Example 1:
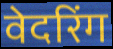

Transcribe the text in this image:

वेदरिंग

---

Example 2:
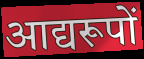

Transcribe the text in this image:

आद्यरूपों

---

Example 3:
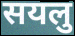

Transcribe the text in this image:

सयलु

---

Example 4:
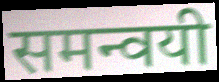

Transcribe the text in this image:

समन्वयी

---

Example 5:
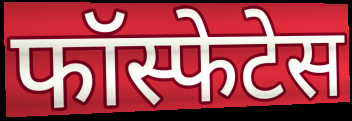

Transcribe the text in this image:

फॉस्फेटेस